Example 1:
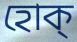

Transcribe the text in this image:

হোক্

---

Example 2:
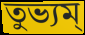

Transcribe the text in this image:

তুভ্যম্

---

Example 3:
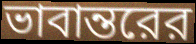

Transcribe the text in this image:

ভাবান্তরের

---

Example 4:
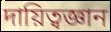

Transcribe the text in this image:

দায়িত্বজ্ঞান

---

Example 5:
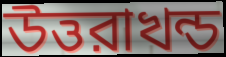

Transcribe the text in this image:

উত্তরাখন্ড